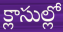
క్లాసుల్లో